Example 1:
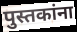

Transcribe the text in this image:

पुस्तकांना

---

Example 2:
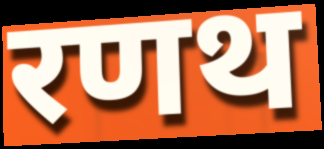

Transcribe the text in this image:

रणथ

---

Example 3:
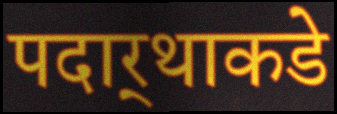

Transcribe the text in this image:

पदार्थाकडे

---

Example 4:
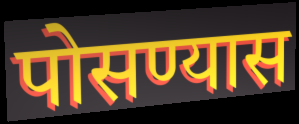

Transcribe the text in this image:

पोसण्यास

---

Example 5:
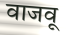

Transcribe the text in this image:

वाजवू